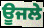
ਊਜਲੇ